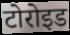
टोरोइड